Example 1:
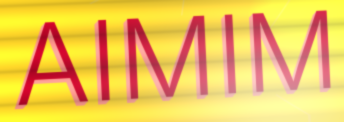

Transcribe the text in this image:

AIMIM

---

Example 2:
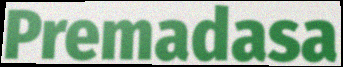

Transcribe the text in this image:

Premadasa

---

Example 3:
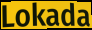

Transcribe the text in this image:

Lokada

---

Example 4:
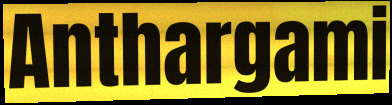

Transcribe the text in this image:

Anthargami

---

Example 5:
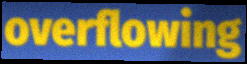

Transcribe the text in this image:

overflowing